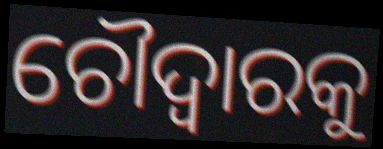
ଚୌଦ୍ୱାରକୁ